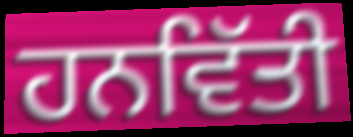
ਹਨਵਿੱਤੀ